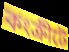
কংক্রীটে